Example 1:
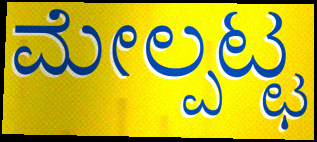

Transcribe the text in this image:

ಮೇಲ್ಪಟ್ಟ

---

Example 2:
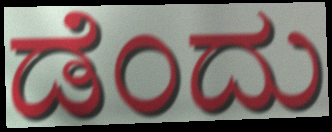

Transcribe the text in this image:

ಡೆಂದು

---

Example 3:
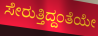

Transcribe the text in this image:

ಸೇರುತ್ತಿದ್ದಂತೆಯೇ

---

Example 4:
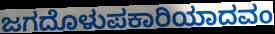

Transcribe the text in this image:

ಜಗದೊಳುಪಕಾರಿಯಾದವಂ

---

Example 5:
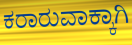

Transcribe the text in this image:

ಕರಾರುವಾಕ್ಕಾಗಿ